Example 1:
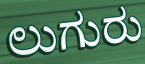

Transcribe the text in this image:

ಲುಗುರು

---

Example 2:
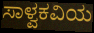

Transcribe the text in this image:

ಸಾಳ್ವಕವಿಯ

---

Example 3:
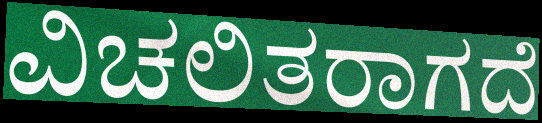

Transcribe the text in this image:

ವಿಚಲಿತರಾಗದೆ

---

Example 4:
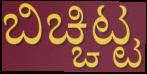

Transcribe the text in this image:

ಬಿಚ್ಚಿಟ್ಟ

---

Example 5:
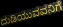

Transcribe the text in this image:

ದುಡಿಯುವವನಿಗೆ